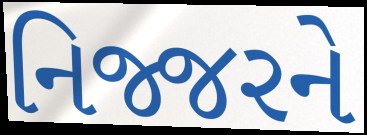
નિજ્જરને